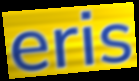
eris